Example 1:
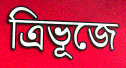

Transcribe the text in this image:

ত্ৰিভূজে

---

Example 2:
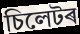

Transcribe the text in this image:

চিলেটৰ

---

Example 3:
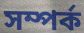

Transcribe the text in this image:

সম্পৰ্ক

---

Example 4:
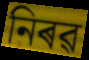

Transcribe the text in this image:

নিৰৱ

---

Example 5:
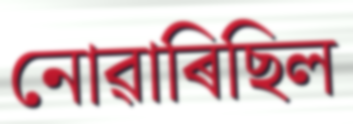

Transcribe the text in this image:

নোৱাৰিছিল